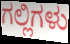
ಗಲ್ಲಿಗಳು